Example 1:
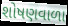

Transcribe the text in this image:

શોષણવાળા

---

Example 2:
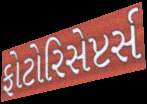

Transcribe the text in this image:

ફોટોરિસેપ્ટર્સ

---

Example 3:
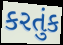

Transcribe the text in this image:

કરતુંક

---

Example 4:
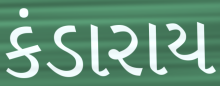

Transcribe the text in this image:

કંડારાય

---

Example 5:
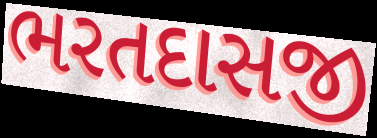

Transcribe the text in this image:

ભરતદાસજી